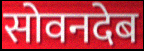
सोवनदेब